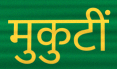
मुकुटीं